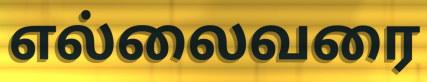
எல்லைவரை